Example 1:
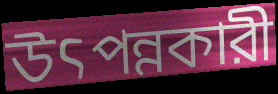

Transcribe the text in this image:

উৎপন্নকারী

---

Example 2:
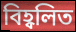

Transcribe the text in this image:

বিহ্বলিত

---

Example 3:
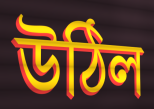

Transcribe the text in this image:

উঠিল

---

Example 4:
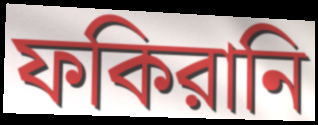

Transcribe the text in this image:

ফকিরানি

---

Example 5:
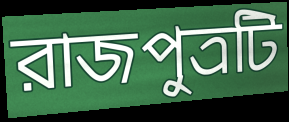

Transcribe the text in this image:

রাজপুত্রটি